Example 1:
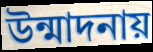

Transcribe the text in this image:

উন্মাদনায়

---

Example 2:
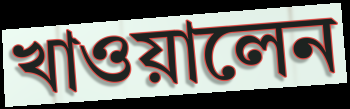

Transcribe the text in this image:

খাওয়ালেন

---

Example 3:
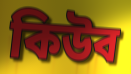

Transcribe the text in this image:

কিউব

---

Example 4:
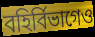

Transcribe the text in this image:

বহির্বিভাগেও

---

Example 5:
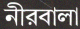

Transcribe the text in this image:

নীরবালা